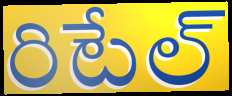
రిటేల్